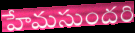
హేమసుందరి